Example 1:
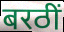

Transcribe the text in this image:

बरठीं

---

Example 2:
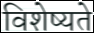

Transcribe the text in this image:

विशेष्यते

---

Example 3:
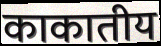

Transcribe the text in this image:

काकातीय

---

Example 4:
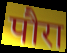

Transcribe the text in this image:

पौरा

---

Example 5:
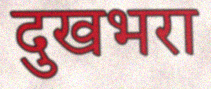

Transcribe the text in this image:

दुखभरा